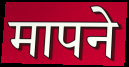
मापने